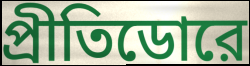
প্রীতিডোরে